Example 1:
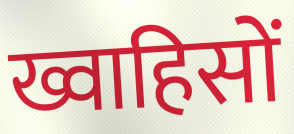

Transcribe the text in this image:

ख्वाहिसों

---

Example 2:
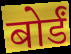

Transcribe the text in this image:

बोर्डं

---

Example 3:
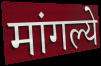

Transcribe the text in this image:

मांगल्ये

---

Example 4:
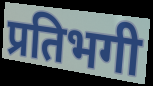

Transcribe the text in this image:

प्रतिभगी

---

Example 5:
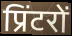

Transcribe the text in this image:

प्रिंटरों